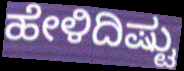
ಹೇಳಿದಿಷ್ಟು